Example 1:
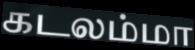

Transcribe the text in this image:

கடலம்மா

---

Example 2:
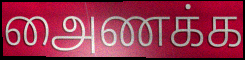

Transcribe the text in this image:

அைணக்க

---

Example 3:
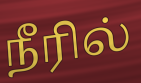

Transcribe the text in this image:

நீரில்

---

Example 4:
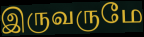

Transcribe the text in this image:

இருவருமே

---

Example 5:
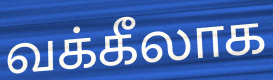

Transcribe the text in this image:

வக்கீலாக